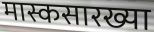
मास्कसारख्या